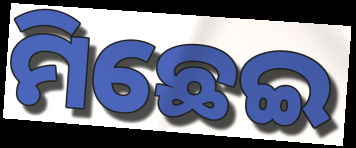
ମିଛେଇ